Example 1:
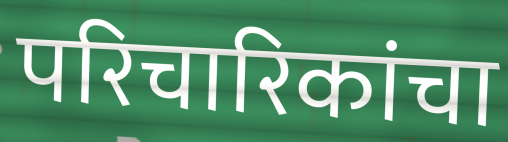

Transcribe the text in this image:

परिचारिकांचा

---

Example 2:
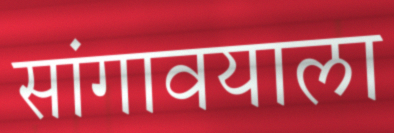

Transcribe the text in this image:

सांगावयाला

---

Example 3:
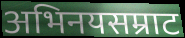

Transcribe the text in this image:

अभिनयसम्राट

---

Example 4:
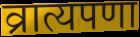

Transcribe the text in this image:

व्रात्यपणा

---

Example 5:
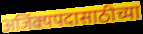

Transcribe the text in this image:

अजिंक्यपदासाठीच्या